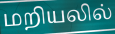
மறியலில்